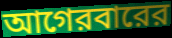
আগেরবারের